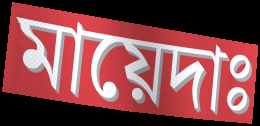
মায়েদাঃ